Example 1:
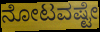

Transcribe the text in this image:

ನೋಟವಷ್ಟೇ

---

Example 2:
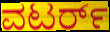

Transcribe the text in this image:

ವಟರ್ರ್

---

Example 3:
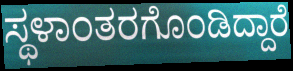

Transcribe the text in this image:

ಸ್ಥಳಾಂತರಗೊಂಡಿದ್ದಾರೆ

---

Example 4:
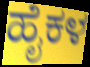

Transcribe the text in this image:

ಹೈಕಳ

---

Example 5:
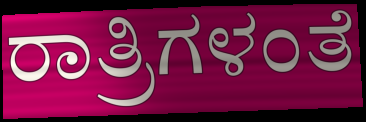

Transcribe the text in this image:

ರಾತ್ರಿಗಳಂತೆ